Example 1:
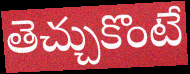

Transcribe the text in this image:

తెచ్చుకొంటే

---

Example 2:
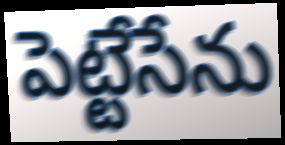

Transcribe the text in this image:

పెట్టేసేను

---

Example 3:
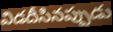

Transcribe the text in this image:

విడదీసినప్పుడు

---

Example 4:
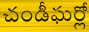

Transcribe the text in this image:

చండీఘర్లో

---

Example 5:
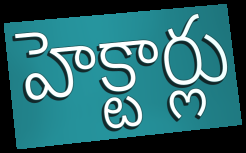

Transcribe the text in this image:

హెక్టార్లు